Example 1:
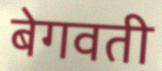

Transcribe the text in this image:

बेगवती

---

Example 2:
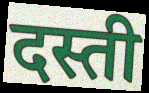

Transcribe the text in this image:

दस्ती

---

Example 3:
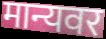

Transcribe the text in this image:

मान्‍यवर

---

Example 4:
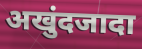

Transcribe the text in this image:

अखुंदजादा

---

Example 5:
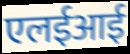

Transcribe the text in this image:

एलईआई